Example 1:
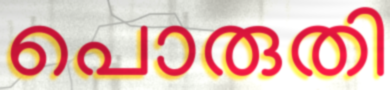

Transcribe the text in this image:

പൊരുതി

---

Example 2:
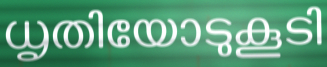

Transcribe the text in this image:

ധൃതിയോടുകൂടി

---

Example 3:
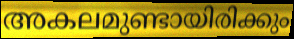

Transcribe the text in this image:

അകലമുണ്ടായിരിക്കും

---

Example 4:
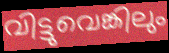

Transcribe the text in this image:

വിട്ടുവെങ്കിലും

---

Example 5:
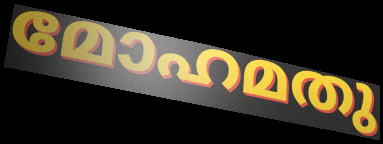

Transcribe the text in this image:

മോഹമതു